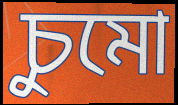
চুমো